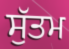
ਸੁੱਤਮ